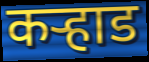
कऱ्हाड